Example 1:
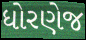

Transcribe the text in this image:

ધોરણેજ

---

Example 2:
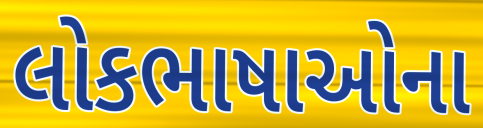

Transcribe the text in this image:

લોકભાષાઓના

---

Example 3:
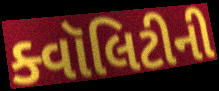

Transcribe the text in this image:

ક્વૉલિટીની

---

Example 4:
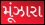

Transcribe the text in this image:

મૂંઝારા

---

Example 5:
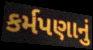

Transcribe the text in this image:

કર્મપણાનું